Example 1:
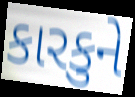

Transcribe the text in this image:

કારકુને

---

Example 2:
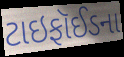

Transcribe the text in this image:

ટાઇફૉઈડના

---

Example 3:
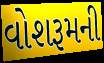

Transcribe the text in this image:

વોશરૂમની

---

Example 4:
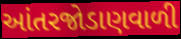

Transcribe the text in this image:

આંતરજોડાણવાળી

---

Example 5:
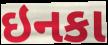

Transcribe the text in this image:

ઇનકા